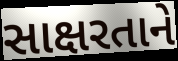
સાક્ષરતાને